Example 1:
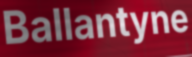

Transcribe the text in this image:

Ballantyne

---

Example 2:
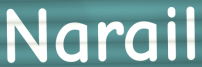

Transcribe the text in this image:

Narail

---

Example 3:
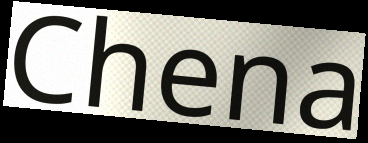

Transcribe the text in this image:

Chena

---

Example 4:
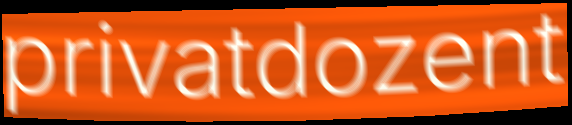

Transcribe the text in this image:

privatdozent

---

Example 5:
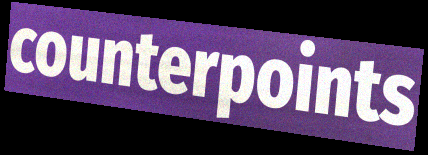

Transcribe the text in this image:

counterpoints